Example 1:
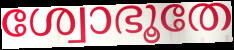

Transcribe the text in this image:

ശ്വോഭൂതേ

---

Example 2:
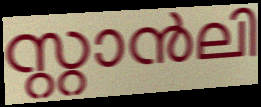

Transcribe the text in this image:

സ്റ്റാൻലി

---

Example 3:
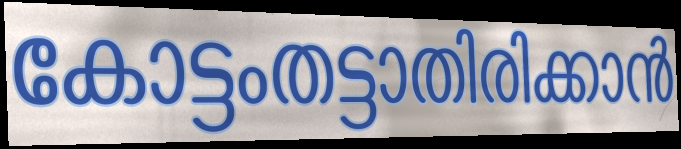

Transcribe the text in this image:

കോട്ടംതട്ടാതിരിക്കാൻ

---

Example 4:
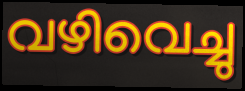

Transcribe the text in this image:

വഴിവെച്ചു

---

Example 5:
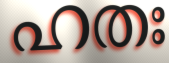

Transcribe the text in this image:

ഹതഃ